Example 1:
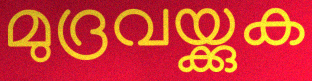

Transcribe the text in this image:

മുദ്രവയ്ക്കുക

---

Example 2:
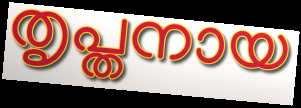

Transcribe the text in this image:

തൃപ്തനായ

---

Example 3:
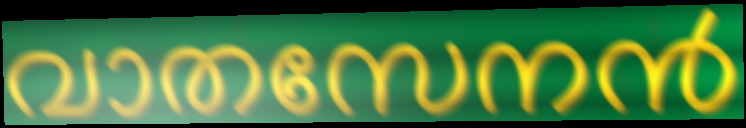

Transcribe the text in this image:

വാതസേനൻ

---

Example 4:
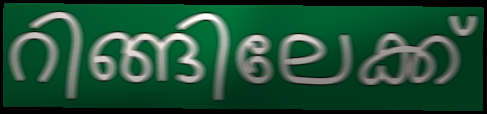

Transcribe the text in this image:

റിങ്ങിലേക്ക്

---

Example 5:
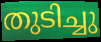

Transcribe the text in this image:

തുടിച്ചു